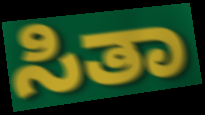
ಸಿತಾ